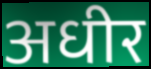
अधीर